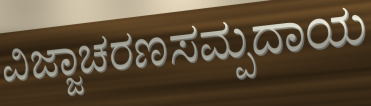
ವಿಜ್ಜಾಚರಣಸಮ್ಪದಾಯ